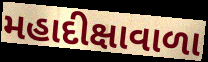
મહાદીક્ષાવાળા